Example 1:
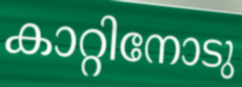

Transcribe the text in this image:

കാറ്റിനോടു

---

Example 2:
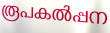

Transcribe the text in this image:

രൂപകൽപ്പന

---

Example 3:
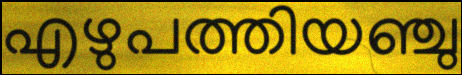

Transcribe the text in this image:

എഴുപത്തിയഞ്ചു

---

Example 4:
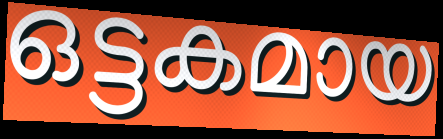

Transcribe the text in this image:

ഒട്ടകമായ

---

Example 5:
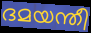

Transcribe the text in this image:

ദമയന്തീ